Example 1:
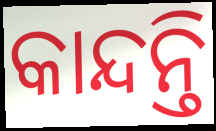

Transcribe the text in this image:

କାନ୍ଦନ୍ତି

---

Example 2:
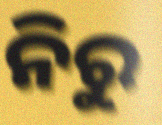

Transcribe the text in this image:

ନିରୁ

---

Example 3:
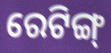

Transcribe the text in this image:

ରେଟିଙ୍ଗ୍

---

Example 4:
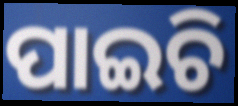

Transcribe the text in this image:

ପାଇଚି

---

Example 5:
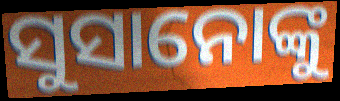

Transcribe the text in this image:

ସୁସାନୋଙ୍କୁ